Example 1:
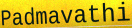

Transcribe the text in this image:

Padmavathi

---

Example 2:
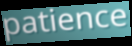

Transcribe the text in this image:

patience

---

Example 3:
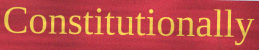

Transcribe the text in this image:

Constitutionally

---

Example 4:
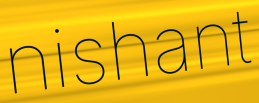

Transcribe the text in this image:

nishant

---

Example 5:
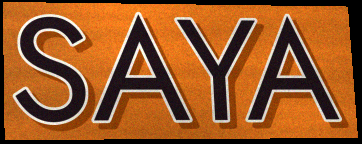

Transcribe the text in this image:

SAYA